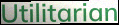
Utilitarian